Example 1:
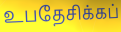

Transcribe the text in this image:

உபதேசிக்கப்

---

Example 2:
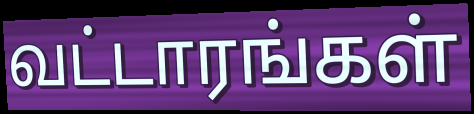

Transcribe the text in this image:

வட்டாரங்கள்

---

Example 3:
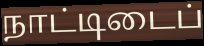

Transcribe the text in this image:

நாட்டிடைப்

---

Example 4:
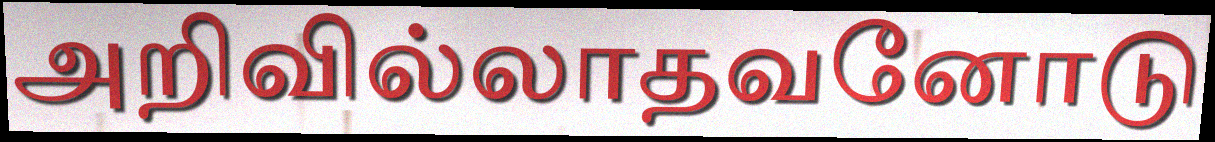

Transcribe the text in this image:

அறிவில்லாதவனோடு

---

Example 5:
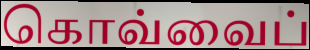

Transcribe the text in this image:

கொவ்வைப்